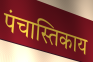
पंचास्तिकाय